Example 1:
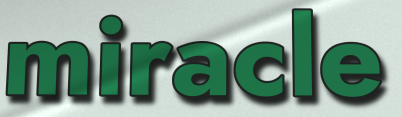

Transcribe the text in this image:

miracle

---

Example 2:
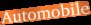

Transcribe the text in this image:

Automobile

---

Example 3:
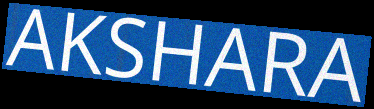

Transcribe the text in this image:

AKSHARA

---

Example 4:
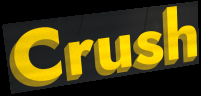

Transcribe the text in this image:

Crush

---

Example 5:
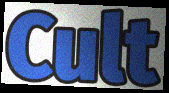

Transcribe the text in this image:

Cult